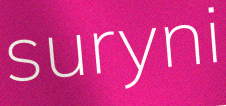
suryni